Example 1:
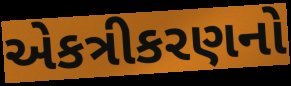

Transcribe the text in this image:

એકત્રીકરણનો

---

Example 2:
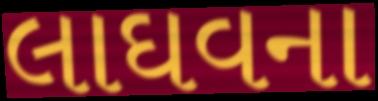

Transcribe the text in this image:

લાઘવના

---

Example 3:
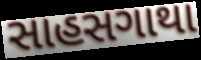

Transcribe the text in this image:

સાહસગાથા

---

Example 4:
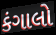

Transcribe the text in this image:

કંગાલો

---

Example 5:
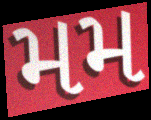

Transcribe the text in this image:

મમ